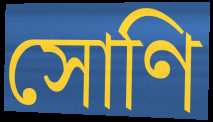
সোণি